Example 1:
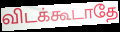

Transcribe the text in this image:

விடக்கூடாதே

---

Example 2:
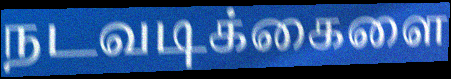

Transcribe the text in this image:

நடவடிக்கைளை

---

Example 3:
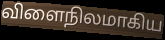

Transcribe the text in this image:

விளைநிலமாகிய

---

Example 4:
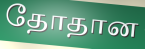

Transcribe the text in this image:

தோதான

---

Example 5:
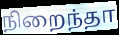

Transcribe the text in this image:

நிறைந்தா